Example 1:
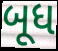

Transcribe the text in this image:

બૂધ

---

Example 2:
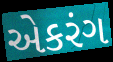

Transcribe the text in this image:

એકરંગ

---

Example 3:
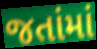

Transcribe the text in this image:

જતાંમાં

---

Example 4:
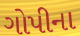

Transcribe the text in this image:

ગોપીના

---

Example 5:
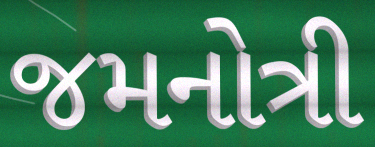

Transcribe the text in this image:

જમનોત્રી